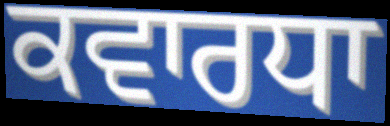
ਕਵਾਰਧਾ